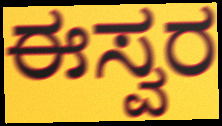
ಈಸ್ವರ